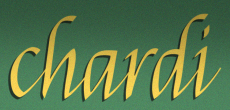
chardi